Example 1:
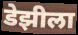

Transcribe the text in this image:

डेझीला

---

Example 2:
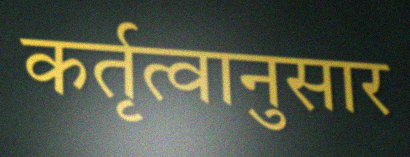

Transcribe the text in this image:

कर्तृत्वानुसार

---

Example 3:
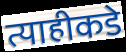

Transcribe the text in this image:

त्याहीकडे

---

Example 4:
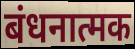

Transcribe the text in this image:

बंधनात्मक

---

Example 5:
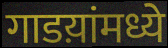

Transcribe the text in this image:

गाडय़ांमध्ये